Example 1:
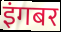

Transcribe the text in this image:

इंगबर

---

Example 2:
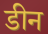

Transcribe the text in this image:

डीन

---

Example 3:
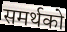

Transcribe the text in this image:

समर्थको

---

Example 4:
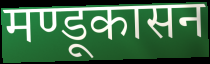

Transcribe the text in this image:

मण्डूकासन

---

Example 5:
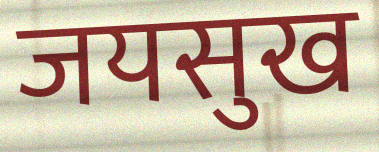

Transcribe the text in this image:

जयसुख